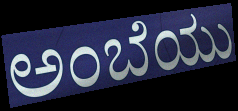
ಅಂಬೆಯು